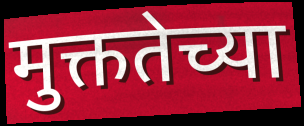
मुक्ततेच्या